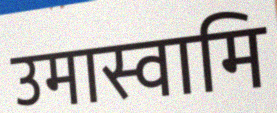
उमास्वामि